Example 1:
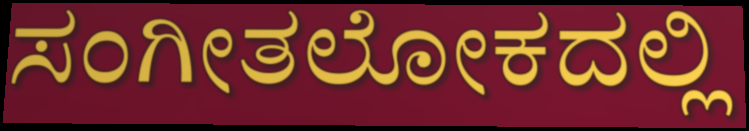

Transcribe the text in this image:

ಸಂಗೀತಲೋಕದಲ್ಲಿ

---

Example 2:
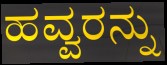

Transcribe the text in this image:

ಹವ್ವರನ್ನು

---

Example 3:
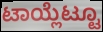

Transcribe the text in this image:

ಟಾಯ್ಲೆಟ್ಟೂ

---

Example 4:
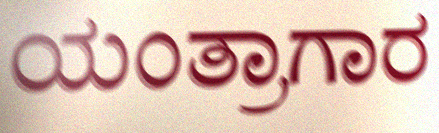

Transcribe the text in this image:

ಯಂತ್ರಾಗಾರ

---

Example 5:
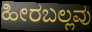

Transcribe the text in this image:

ಹೀರಬಲ್ಲವು